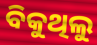
ବିକୁଥିଲୁ